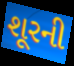
શૂરની